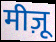
मीज़ू